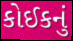
કોઈકનું